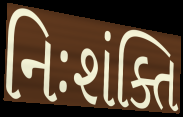
નિઃશંક્તિ